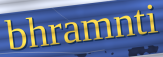
bhramnti